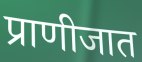
प्राणीजात